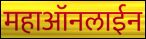
महाऑनलाईन